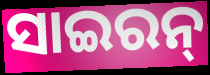
ସାଇରନ୍